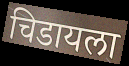
चिडायला